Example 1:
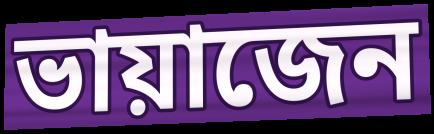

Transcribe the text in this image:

ভায়াজেন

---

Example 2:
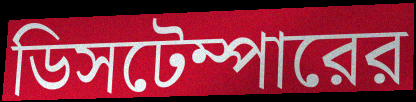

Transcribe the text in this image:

ডিসটেম্পারের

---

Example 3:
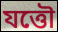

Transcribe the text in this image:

যত্তৌ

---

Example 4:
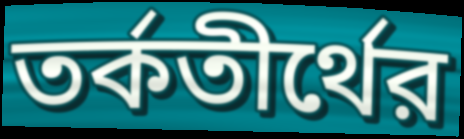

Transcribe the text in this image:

তর্কতীর্থের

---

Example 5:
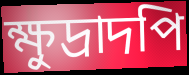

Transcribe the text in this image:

ক্ষুদ্রাদপি